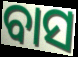
ବାସ